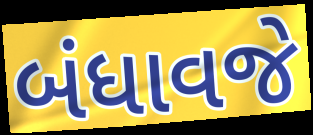
બંધાવજે